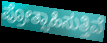
ಪ್ರೋತ್ಸಾಹಿಸುತ್ತಿವೆ